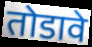
तोडावे